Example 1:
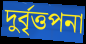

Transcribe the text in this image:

দুর্বৃত্তপনা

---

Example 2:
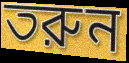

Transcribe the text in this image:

তরুন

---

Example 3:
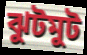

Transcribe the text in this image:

ঝুটমুট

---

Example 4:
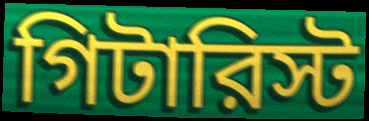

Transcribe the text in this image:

গিটারিস্ট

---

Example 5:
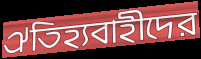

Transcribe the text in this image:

ঐতিহ্যবাহীদের